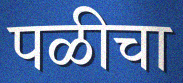
पळीचा